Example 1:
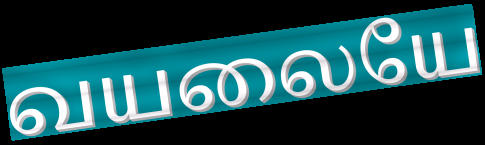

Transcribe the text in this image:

வயலையே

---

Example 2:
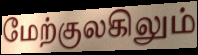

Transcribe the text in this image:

மேற்குலகிலும்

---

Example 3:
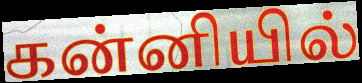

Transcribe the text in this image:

கன்னியில்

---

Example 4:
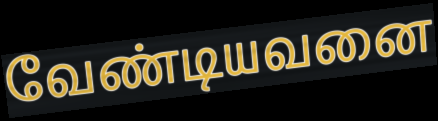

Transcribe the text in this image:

வேண்டியவனை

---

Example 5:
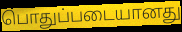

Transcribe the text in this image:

பொதுப்படையானது